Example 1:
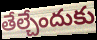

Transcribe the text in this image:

తేల్చేందుకు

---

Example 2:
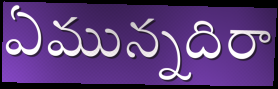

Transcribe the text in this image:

ఏమున్నదిరా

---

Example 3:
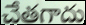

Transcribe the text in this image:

చేతగాదు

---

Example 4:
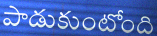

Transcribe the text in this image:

పాడుకుంటోంది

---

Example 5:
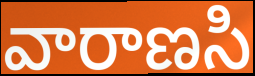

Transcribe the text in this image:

వారాణసి